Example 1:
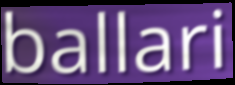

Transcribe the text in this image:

ballari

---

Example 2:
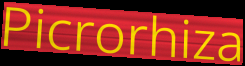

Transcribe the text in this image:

Picrorhiza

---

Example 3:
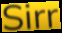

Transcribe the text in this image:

Sirr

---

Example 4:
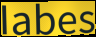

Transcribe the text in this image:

Iabes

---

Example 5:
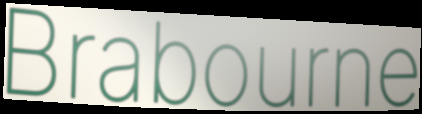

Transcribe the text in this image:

Brabourne